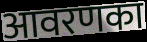
आवरणका